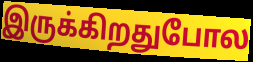
இருக்கிறதுபோல